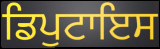
ਡਿਪੁਟਾਇਸ